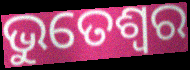
ଭୁତେଶ୍ୱର